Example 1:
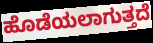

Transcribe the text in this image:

ಹೊಡೆಯಲಾಗುತ್ತದೆ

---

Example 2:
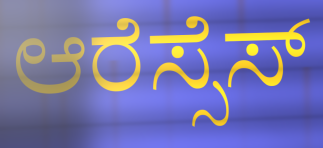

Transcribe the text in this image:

ಆರೆಸ್ಸೆಸ್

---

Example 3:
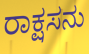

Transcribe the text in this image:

ರಾಕ್ಷಸನು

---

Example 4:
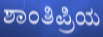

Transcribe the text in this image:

ಶಾಂತಿಪ್ರಿಯ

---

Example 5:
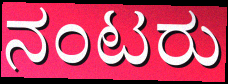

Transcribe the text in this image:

ನಂಟರು